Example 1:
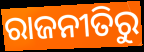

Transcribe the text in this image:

ରାଜନୀତିରୁ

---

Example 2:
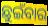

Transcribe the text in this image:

ଛୁଇଁବାର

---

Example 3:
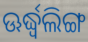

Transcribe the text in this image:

ଊର୍ଦ୍ଧ୍ୱଲିଙ୍ଗ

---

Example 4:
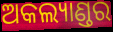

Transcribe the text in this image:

ଅକଲ୍ୟାଣ୍ଡର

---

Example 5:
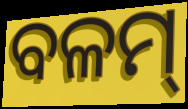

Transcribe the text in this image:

ବଳମ୍